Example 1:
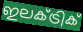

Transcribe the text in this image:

ഇലക്ട്രിക്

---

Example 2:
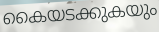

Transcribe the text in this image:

കൈയടക്കുകയും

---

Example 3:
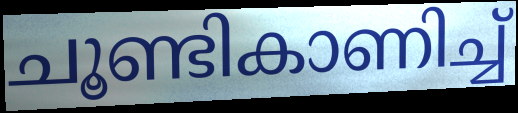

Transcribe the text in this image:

ചൂണ്ടികാണിച്ച്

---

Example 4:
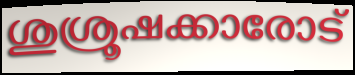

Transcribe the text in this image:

ശുശ്രൂഷക്കാരോട്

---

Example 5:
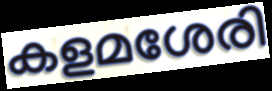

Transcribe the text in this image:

കളമശേരി